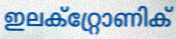
ഇലക്റ്റ്രോണിക്